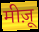
मीज़ू